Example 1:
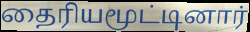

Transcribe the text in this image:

தைரியமூட்டினார்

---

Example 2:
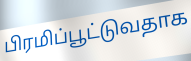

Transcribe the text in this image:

பிரமிப்பூட்டுவதாக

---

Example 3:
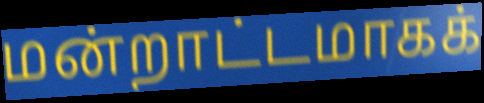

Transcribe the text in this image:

மன்றாட்டமாகக்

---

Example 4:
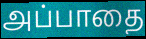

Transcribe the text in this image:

அப்பாதை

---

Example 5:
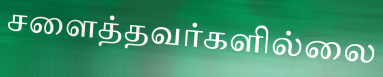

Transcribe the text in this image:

சளைத்தவர்களில்லை